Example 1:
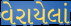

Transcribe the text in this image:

વેરાયેલાં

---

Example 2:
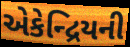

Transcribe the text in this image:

એકેન્દ્રિયની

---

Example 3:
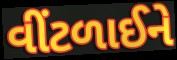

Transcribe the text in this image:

વીંટળાઈને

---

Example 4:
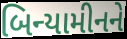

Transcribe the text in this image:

બિન્યામીનને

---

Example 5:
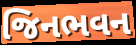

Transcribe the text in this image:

જિનભવન